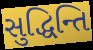
સુદ્ધિન્તિ